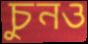
চুনও